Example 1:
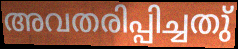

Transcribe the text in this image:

അവതരിപ്പിച്ചതു്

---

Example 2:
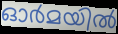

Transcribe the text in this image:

ഓർമയിൽ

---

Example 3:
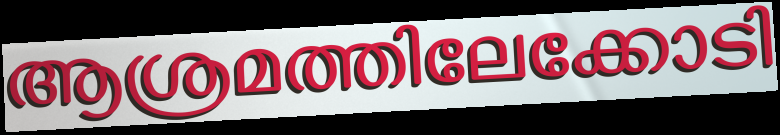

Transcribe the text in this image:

ആശ്രമത്തിലേക്കോടി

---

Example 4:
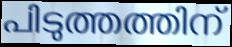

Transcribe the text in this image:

പിടുത്തത്തിന്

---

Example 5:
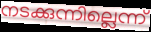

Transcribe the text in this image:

നടക്കുന്നില്ലെന്ന്